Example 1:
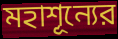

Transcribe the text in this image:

মহাশূন্যের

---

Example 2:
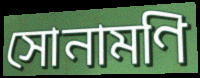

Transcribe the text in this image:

সোনামণি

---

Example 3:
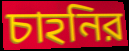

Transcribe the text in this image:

চাহনির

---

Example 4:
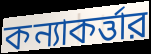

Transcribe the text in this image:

কন্যাকর্ত্তার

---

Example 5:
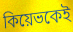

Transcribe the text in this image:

কিয়েভকেই